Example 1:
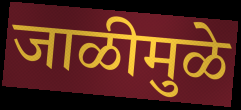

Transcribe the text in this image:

जाळीमुळे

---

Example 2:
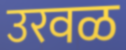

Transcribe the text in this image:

उरवळ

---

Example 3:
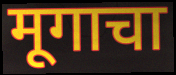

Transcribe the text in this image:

मूगाचा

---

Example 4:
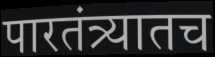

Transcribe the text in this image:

पारतंत्र्यातच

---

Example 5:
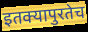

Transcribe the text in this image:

इतक्यापुरतेच